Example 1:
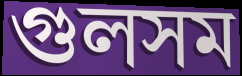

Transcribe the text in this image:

গুলসম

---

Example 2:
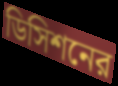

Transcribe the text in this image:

ডিসিশনের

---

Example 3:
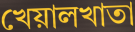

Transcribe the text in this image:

খেয়ালখাতা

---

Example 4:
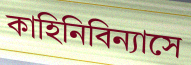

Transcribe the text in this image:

কাহিনিবিন্যাসে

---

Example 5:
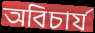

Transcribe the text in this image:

অবিচার্য